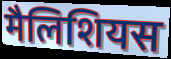
मैलिशियस